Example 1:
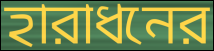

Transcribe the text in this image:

হারাধনের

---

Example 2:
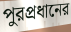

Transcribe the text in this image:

পুরপ্রধানের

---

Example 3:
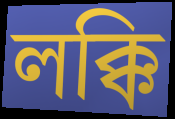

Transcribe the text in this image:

লক্কি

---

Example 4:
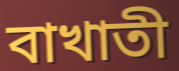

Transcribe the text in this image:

বাখাতী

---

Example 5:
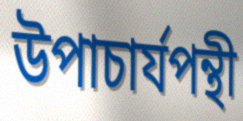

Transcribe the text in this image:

উপাচার্যপন্থী